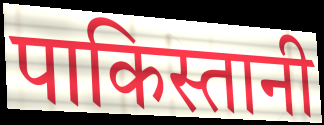
पाकिस्तानी